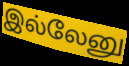
இல்லேனு